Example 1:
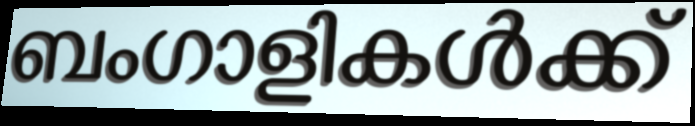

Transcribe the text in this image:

ബംഗാളികൾക്ക്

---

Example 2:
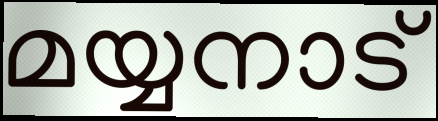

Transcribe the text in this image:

മയ്യനാട്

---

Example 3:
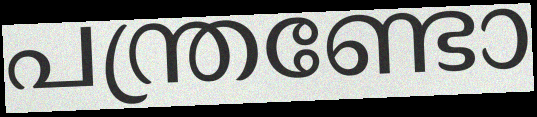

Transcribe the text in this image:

പന്ത്രണ്ടോ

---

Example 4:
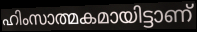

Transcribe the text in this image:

ഹിംസാത്മകമായിട്ടാണ്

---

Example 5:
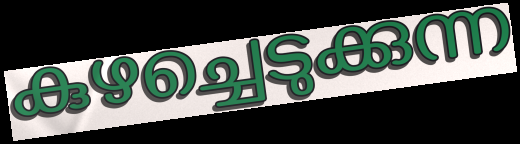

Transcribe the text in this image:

കുഴച്ചെടുക്കുന്ന